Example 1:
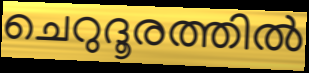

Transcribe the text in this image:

ചെറുദൂരത്തിൽ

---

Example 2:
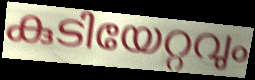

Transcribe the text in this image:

കുടിയേറ്റവും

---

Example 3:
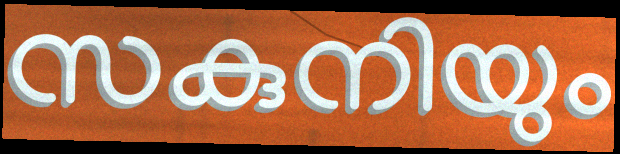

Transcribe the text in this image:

സകുനിയും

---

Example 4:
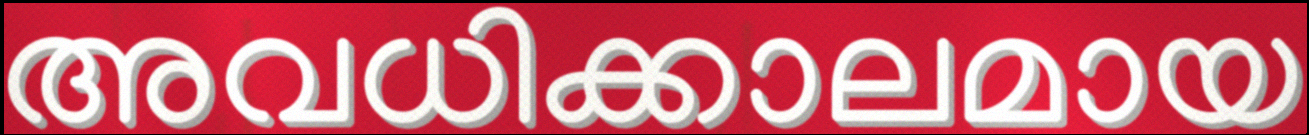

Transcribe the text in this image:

അവധിക്കാലമായ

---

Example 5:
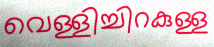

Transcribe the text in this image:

വെള്ളിച്ചിറകുള്ള